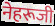
नेहरूजी